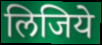
लिजिये